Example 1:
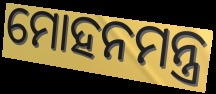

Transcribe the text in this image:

ମୋହନମନ୍ତ୍ର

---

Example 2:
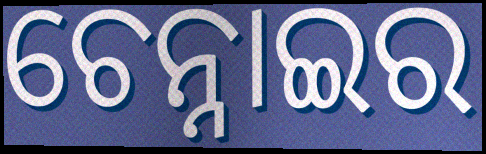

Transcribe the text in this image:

ଚେନ୍ନାଇର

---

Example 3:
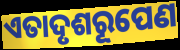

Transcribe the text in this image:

ଏତାଦୃଶରୂପେଣ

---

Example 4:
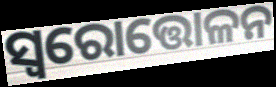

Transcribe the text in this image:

ସ୍ବରୋତ୍ତୋଳନ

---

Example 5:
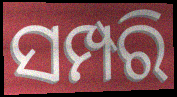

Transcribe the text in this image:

ସମ୍ପରି